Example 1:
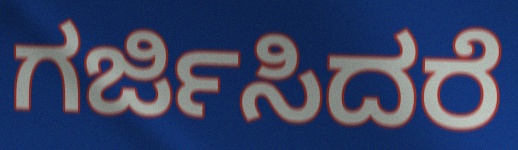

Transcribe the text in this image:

ಗರ್ಜಿಸಿದರೆ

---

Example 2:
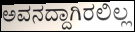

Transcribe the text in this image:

ಅವನದ್ದಾಗಿರಲಿಲ್ಲ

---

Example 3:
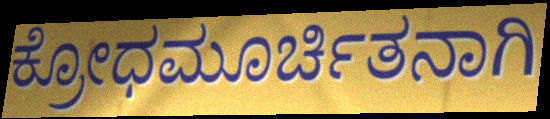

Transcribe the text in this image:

ಕ್ರೋಧಮೂರ್ಚಿತನಾಗಿ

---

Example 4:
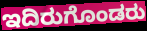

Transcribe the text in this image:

ಇದಿರುಗೊಂಡರು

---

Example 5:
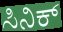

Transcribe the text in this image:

ಸಿನಿಕ್